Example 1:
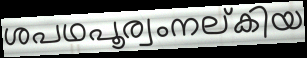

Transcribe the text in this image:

ശപഥപൂര്വംനല്കിയ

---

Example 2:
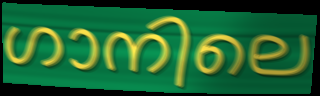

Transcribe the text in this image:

ഗാനിലെ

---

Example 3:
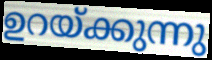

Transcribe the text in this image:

ഉറയ്ക്കുന്നു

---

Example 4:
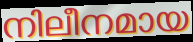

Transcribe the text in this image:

നിലീനമായ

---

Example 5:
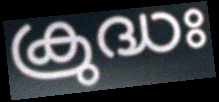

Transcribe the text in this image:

ക്രുദ്ധഃ